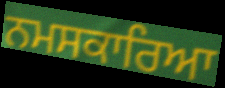
ਨਮਸਕਾਰਿਆ